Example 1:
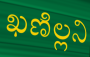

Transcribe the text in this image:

ఖణిల్లని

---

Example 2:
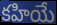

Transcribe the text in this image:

కహియే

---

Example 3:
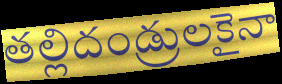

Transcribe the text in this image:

తల్లిదండ్రులకైనా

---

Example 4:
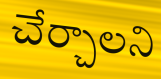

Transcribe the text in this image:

చేర్చాలని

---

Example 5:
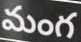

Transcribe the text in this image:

మంగ